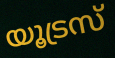
യൂട്രസ്